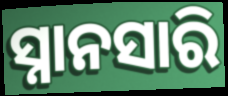
ସ୍ନାନସାରି